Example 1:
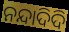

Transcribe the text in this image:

ନନ୍ଦାଦିଦି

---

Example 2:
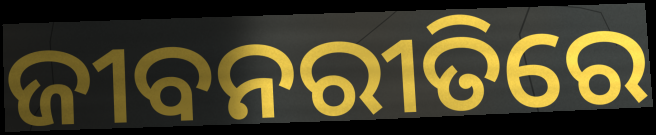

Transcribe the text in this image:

ଜୀବନରୀତିରେ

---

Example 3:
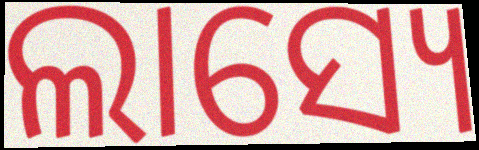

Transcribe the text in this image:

ଲାସ୍ୟେ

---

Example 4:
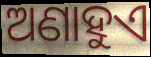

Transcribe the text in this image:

ଅଣାହୁଏ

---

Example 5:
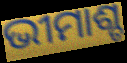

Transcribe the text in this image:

ଭୀମାଶ୍ଚ